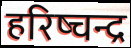
हरिष्चन्द्र